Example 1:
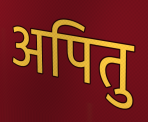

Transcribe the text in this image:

अपितु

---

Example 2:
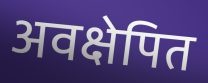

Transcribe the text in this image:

अवक्षेपित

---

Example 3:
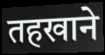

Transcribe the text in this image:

तहखाने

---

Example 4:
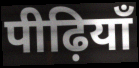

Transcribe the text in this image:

पीढ़ियाँ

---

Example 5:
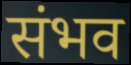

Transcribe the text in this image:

संभव